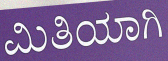
ಮಿತಿಯಾಗಿ